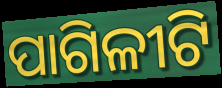
ପାଗିଳୀଟି